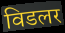
विडलर